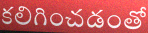
కలిగించడంతో